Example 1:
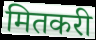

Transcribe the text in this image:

मितकरी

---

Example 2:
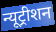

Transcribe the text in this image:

न्यूट्रीशन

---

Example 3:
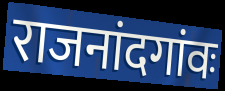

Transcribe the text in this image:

राजनांदगांवः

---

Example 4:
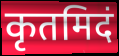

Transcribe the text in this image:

कृतमिदं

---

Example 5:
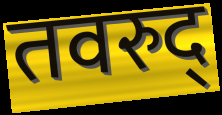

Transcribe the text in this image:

तवरुद्